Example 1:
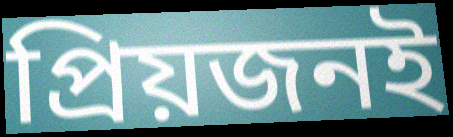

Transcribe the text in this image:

প্রিয়জনই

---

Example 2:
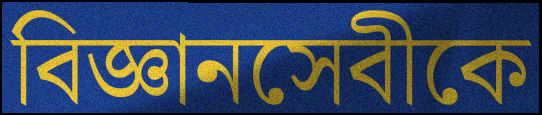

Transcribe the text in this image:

বিজ্ঞানসেবীকে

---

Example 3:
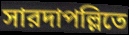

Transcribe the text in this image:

সারদাপল্লিতে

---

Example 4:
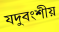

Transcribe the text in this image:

যদুবংশীয়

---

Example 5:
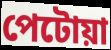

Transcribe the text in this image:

পেটোয়া